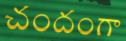
చందంగా